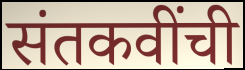
संतकवींची